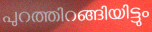
പുറത്തിറങ്ങിയിട്ടും